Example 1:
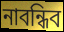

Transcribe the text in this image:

নাবন্ধিব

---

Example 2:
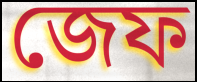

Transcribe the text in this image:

জেফ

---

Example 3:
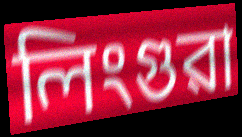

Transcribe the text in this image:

লিংগুৱা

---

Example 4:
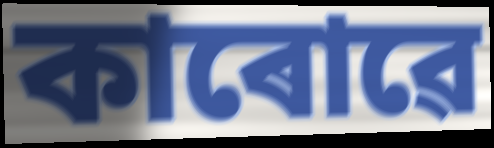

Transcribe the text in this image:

কাৰোৱে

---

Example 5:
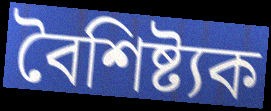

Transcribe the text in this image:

বৈশিষ্ট্যক